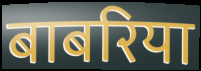
बाबरिया